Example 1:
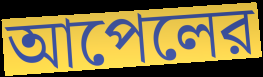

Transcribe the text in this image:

আপেলের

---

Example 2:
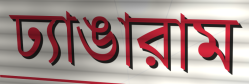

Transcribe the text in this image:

ঢ্যাঙারাম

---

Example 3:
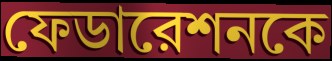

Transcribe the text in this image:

ফেডারেশনকে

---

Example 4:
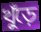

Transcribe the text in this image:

খুঁড়ে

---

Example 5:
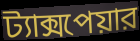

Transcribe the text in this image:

ট্যাক্সপেয়ার